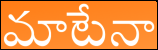
మాటేనా